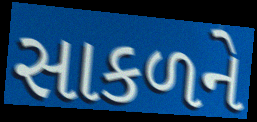
સાકળને